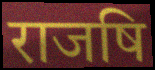
राजषि